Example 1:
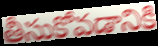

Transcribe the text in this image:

తీసుకోవడానికి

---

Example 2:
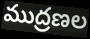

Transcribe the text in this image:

ముద్రణల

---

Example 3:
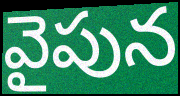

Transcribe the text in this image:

వైపున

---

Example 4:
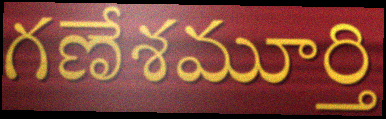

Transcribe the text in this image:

గణేశమూర్తి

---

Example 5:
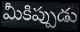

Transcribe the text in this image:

మీకిప్పుడు